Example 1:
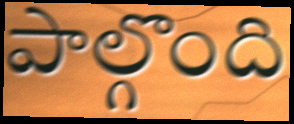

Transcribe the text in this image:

పాల్గొంది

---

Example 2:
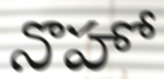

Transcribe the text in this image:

నొహో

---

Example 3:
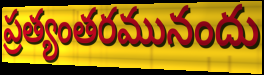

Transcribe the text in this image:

ప్రత్యంతరమునందు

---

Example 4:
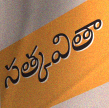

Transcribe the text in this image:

సత్కవితా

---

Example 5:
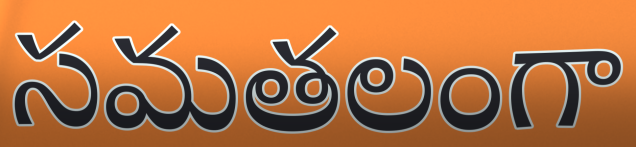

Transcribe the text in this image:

సమతలంగా